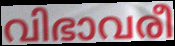
വിഭാവരീ